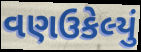
વણઉકેલ્યું